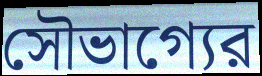
সৌভাগ্যের